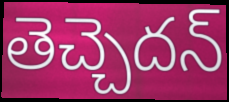
తెచ్చెదన్